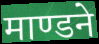
माण्डने